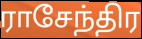
ராசேந்திர